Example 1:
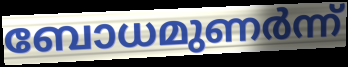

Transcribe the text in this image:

ബോധമുണർന്ന്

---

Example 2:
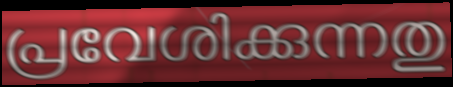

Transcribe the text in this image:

പ്രവേശിക്കുന്നതു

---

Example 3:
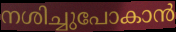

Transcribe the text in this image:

നശിച്ചുപോകാൻ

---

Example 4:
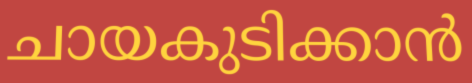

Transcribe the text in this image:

ചായകുടിക്കാൻ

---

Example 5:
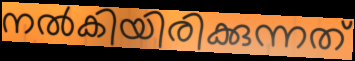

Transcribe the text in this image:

നൽകിയിരിക്കുന്നത്